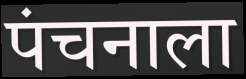
पंचनाला